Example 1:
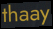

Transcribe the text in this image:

thaay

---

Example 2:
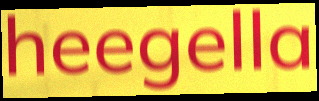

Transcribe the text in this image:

heegella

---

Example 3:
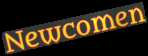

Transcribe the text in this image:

Newcomen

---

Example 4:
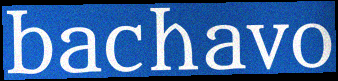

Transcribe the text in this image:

bachavo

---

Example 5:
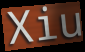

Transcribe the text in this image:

Xiu